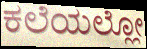
ಕಲೆಯಲ್ಲೋ